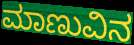
ಮಾಣುವಿನ